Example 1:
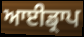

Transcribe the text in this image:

ਆਈਡ੍ਰਾਪ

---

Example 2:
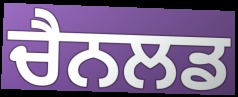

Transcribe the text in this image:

ਚੈਨਲਡ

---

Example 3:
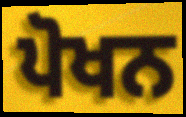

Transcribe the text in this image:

ਪੋਖਨ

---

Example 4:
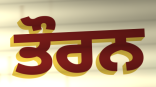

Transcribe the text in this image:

ਤੌਰਨ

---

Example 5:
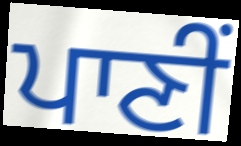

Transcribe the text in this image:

ਪਾਣੀਂ